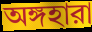
অঙ্গহারা